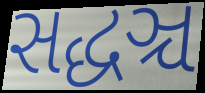
સદ્ધઞ્ચ